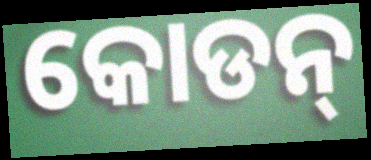
କୋଡନ୍